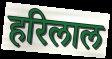
हरिलाल